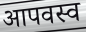
आपवस्व